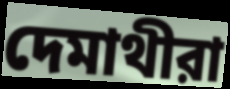
দেমাথীরা